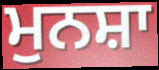
ਮੁਨਸ਼ਾ